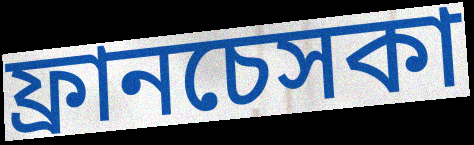
ফ্রানচেসকা